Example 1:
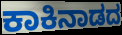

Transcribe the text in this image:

ಕಾಕಿನಾಡದ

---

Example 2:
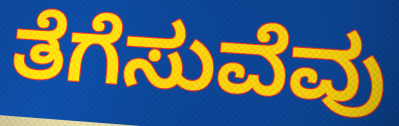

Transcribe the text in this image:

ತೆಗೆಸುವೆವು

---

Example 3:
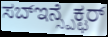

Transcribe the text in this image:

ಸಬ್ಇನ್ಸ್ಪೆಕ್ಟರ್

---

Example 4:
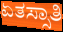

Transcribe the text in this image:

ಏತಸ್ಸಾತಿ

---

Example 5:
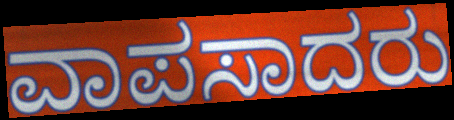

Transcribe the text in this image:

ವಾಪಸಾದರು